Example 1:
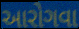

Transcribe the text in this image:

આરોગવા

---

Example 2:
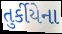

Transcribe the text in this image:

તુર્કીયેના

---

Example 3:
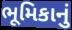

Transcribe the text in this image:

ભૂમિકાનું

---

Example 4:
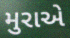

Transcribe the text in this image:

મુરાએ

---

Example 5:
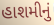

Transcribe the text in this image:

હાશમીનું